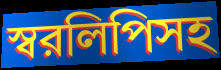
স্বরলিপিসহ